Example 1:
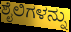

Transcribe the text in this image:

ಶೈಲಿಗಳನ್ನು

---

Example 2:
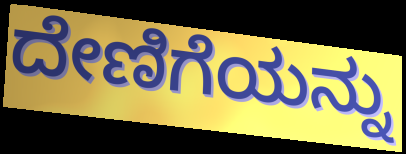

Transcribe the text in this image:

ದೇಣಿಗೆಯನ್ನು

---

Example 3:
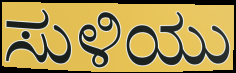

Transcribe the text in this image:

ಸುಳಿಯು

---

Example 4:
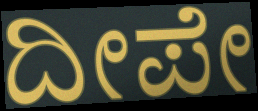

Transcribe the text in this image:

ದೀಪೇ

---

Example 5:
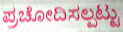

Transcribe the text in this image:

ಪ್ರಚೋದಿಸಲ್ಪಟ್ಟು